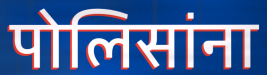
पोलिसांना